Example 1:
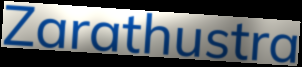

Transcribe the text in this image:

Zarathustra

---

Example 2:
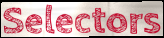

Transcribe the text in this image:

Selectors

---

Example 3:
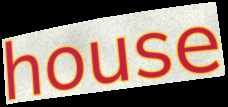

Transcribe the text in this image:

house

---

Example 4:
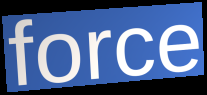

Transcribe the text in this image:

force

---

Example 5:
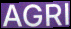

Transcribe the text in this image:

AGRI